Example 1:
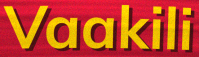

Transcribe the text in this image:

Vaakili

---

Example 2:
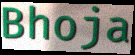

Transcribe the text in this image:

Bhoja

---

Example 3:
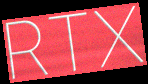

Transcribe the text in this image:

RTX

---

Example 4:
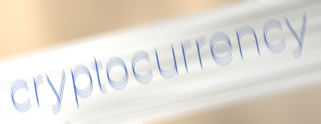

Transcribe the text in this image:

cryptocurrency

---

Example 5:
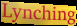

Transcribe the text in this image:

Lynching